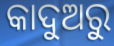
କାଦୁଅରୁ